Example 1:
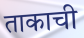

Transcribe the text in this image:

ताकाची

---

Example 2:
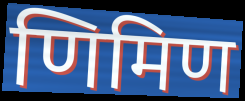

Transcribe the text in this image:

णिमिण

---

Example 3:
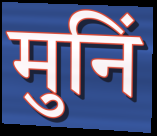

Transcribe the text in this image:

मुनिं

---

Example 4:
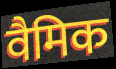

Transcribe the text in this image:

वैमिक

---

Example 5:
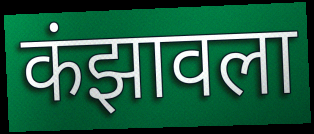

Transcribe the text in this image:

कंझावला